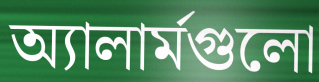
অ্যালার্মগুলো